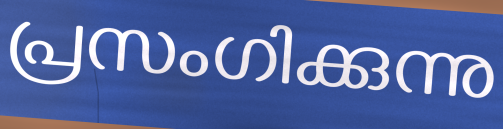
പ്രസംഗിക്കുന്നു